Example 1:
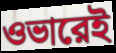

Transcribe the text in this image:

ওভারেই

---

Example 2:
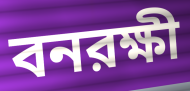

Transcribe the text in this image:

বনরক্ষী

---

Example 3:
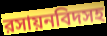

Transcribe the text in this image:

রসায়নবিদসহ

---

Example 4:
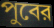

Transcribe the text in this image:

পুবের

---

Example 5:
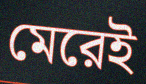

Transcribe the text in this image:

মেরেই